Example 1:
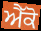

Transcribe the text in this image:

ਐੱਕੋ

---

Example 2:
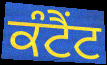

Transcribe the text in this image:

ਕੰਟੈਂਟ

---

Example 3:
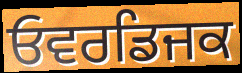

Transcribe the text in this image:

ਓਵਰਡਿਜਕ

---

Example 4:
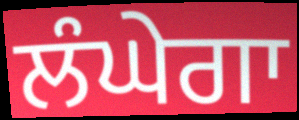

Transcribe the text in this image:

ਲੰਘੇਗਾ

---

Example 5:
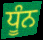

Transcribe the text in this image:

ਧੂੰਨ